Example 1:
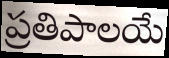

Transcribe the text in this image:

ప్రతిపాలయే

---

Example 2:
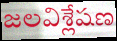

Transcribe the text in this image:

జలవిశ్లేషణ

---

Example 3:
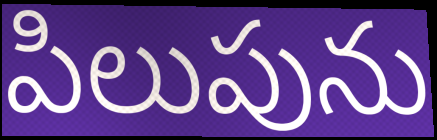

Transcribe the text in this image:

పిలుపును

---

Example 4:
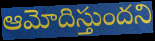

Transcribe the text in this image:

ఆమోదిస్తుందని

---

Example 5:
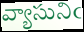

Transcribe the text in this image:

వ్యాసునిఁ